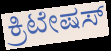
ಕ್ರಿಟೇಷಸ್